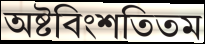
অষ্টবিংশতিতম